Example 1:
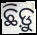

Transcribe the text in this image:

ଛିଡ଼ୁ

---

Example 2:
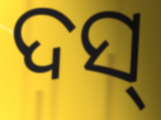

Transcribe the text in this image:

ଦସ୍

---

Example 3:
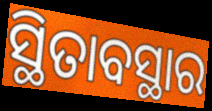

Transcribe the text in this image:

ସ୍ଥିତାବସ୍ଥାର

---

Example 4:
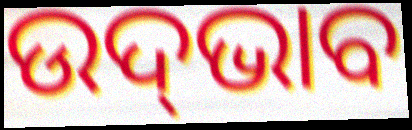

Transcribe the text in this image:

ଉଦ୍‍ଭାବ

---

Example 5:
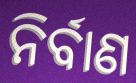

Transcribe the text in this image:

ନିର୍ବାଣ